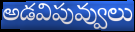
అడవిపువ్వులు